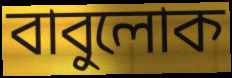
বাবুলোক